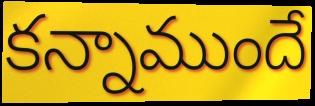
కన్నాముందే